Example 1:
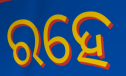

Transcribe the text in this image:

ରହେ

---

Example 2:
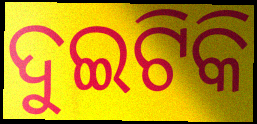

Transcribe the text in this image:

ଦୁଇଟିକି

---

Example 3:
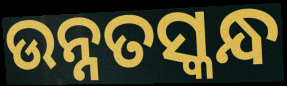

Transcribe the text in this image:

ଉନ୍ନତସ୍କନ୍ଧ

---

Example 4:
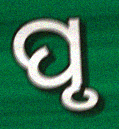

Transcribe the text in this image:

ପୃ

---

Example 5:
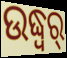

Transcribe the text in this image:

ଉଦ୍ଧ୍ୱର୍